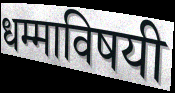
धम्माविषयी